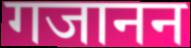
गजानन